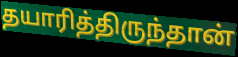
தயாரித்திருந்தான்